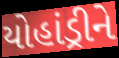
યોહાંડ્રીને